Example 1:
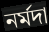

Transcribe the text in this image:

নর্মদা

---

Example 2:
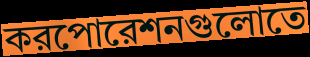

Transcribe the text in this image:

করপোরেশনগুলোতে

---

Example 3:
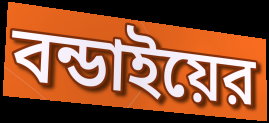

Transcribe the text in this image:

বন্ডাইয়ের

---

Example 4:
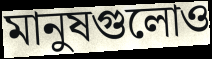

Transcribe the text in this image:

মানুষগুলোও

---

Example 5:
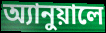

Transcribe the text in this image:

অ্যানুয়ালে